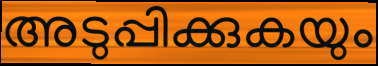
അടുപ്പിക്കുകയും